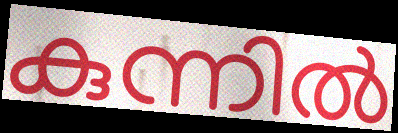
കുന്നിൽ